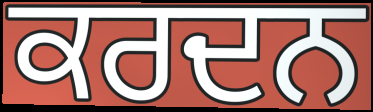
ਕਰਦਨ